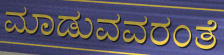
ಮಾಡುವವರಂತೆ